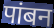
पांबन